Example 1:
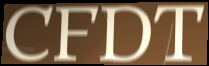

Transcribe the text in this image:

CFDT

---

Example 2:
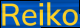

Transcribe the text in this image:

Reiko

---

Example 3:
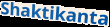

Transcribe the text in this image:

Shaktikanta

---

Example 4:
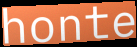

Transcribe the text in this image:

honte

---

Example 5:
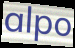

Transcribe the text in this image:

alpo